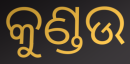
କୁଣ୍ଡଉ